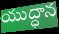
యుద్ధాన